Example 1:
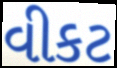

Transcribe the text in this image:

વીકટ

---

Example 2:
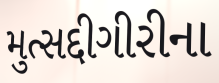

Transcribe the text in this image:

મુત્સદ્દીગીરીના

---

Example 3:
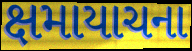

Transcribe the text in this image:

ક્ષમાયાચના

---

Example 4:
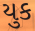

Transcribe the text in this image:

યુક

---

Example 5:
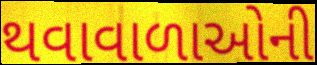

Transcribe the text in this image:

થવાવાળાઓની